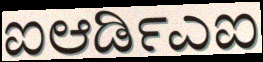
ಐಆರ್ಡಿಎಐ